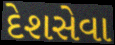
દેશસેવા